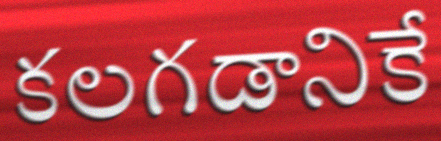
కలగడానికే